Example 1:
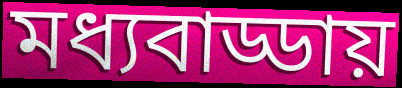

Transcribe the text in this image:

মধ্যবাড্ডায়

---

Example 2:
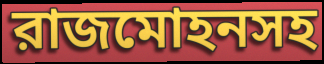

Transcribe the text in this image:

রাজমোহনসহ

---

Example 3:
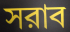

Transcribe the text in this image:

সরাব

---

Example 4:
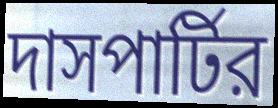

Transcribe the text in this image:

দাসপার্টির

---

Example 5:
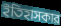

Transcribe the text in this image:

ইতিহাসকার